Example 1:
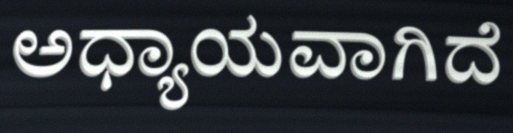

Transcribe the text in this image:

ಅಧ್ಯಾಯವಾಗಿದೆ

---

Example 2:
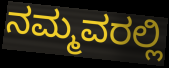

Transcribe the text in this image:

ನಮ್ಮವರಲ್ಲಿ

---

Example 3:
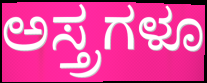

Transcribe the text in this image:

ಅಸ್ತ್ರಗಳೂ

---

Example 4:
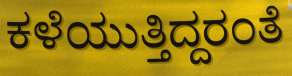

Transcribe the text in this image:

ಕಳೆಯುತ್ತಿದ್ದರಂತೆ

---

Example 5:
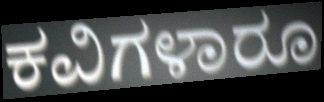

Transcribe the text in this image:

ಕವಿಗಳಾರೂ